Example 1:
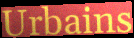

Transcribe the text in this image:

Urbains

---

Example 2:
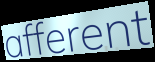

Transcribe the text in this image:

afferent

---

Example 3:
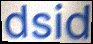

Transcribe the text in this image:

dsid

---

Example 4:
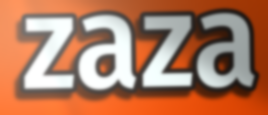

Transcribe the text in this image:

zaza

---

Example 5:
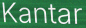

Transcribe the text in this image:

Kantar